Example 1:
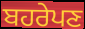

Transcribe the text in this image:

ਬਹਰੇਪਣ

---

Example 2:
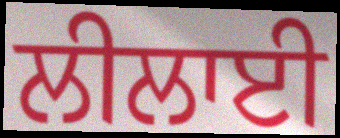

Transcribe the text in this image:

ਲੀਲਾਈ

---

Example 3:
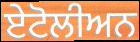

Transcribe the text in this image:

ਏਟੋਲੀਅਨ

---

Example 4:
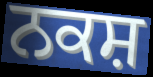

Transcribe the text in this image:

ਨਕਸ਼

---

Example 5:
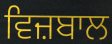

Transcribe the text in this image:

ਵਿਜ਼ਬਾਲ